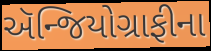
ઍન્જિયોગ્રાફીના